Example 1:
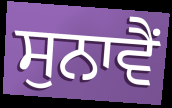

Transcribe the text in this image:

ਸੁਨਾਵੈਂ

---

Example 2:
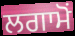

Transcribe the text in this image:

ਲਗਾਮੋਂ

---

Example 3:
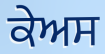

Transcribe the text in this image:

ਕੇਅਸ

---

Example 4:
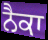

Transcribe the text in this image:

ਨੈਕਾ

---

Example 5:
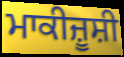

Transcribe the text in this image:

ਮਾਕੀਜ਼ੂਸ਼ੀ